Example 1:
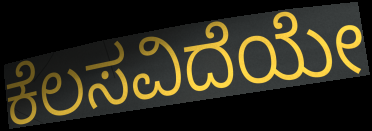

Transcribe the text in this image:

ಕೆಲಸವಿದೆಯೇ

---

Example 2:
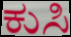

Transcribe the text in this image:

ಕುಸಿ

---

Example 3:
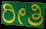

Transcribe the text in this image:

ರೀತಿ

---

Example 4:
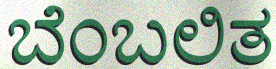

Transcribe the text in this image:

ಬೆಂಬಲಿತ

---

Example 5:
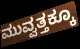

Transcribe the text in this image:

ಮುವ್ವತ್ತಕ್ಕೂ